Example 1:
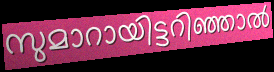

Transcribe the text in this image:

സുമാറായിട്ടറിഞ്ഞാൽ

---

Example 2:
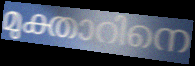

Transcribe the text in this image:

മുക്താറിനെ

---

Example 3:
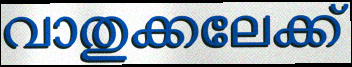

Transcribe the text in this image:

വാതുക്കലേക്ക്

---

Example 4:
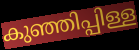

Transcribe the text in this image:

കുഞ്ഞിപ്പിള്ള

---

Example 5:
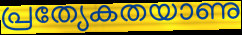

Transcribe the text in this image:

പ്രത്യേകതയാണു